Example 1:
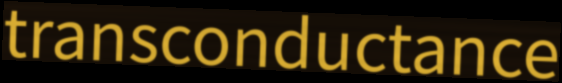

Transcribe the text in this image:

transconductance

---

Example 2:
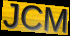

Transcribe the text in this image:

JCM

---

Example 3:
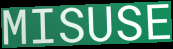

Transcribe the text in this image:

MISUSE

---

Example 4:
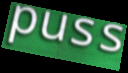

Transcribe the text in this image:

puss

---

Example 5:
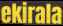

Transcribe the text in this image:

ekirala